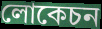
লোকেচন